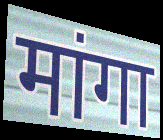
मांगा